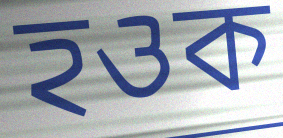
হওক